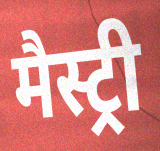
मैस्ट्री